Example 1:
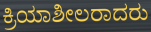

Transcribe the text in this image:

ಕ್ರಿಯಾಶೀಲರಾದರು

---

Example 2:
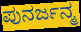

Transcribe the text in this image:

ಪುನರ್ಜನ್ಮ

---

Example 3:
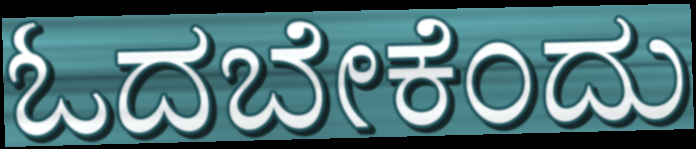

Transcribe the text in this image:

ಓದಬೇಕೆಂದು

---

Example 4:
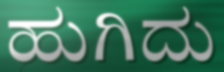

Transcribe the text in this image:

ಹುಗಿದು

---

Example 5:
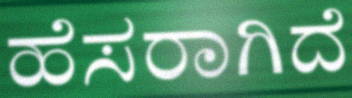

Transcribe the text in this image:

ಹೆಸರಾಗಿದೆ